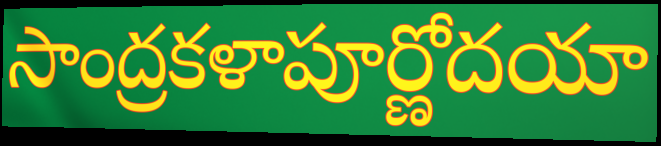
సాంద్రకళాపూర్ణోదయా